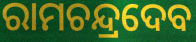
ରାମଚନ୍ଦ୍ରଦେବ